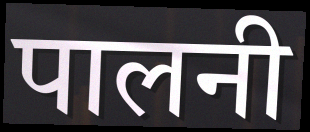
पालनी